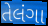
તેલંગા